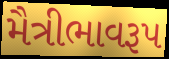
મૈત્રીભાવરૂપ